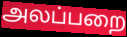
அலப்பறை